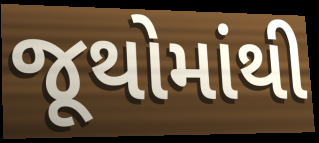
જૂથોમાંથી